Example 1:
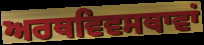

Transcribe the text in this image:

ਅਰਥਵਿਵਸਥਾਵਾਂ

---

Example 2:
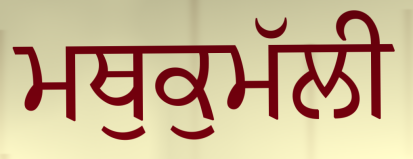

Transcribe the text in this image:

ਮਥੁਕੁਮੱਲੀ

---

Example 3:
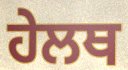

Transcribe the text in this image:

ਹੇਲਥ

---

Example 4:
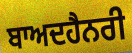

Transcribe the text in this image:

ਬਾਅਦਹੈਨਰੀ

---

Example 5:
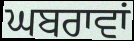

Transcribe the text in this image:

ਘਬਰਾਵਾਂ